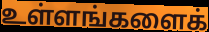
உள்ளங்களைக்